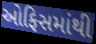
ઓફિસમાંથી